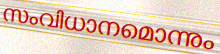
സംവിധാനമൊന്നും